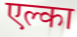
एल्का